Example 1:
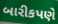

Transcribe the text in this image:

બારીકપણે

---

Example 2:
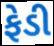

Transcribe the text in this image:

ફેડી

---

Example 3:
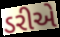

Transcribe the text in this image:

ડરીએ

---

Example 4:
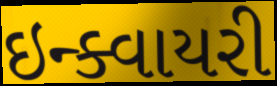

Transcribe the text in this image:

ઇન્ક્વાયરી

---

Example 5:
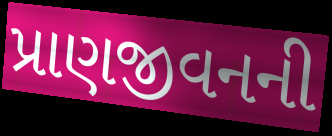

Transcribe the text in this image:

પ્રાણજીવનની